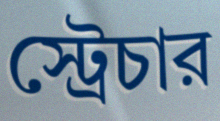
স্ট্রেচার